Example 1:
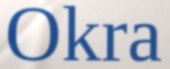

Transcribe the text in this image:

Okra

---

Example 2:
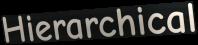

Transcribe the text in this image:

Hierarchical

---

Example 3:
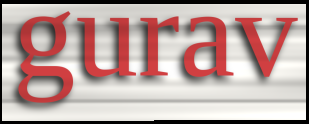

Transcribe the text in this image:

gurav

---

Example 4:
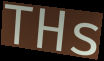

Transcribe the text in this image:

THs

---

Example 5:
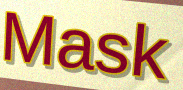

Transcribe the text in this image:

Mask